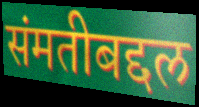
संमतीबद्दल